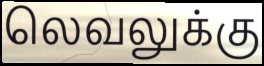
லெவலுக்கு